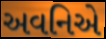
અવનિએ